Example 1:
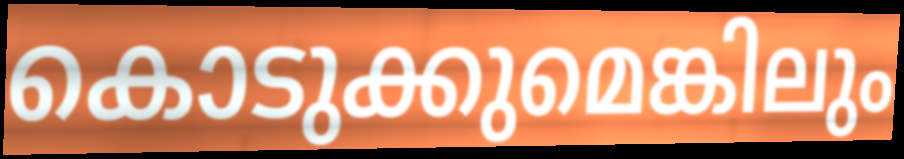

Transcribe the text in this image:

കൊടുക്കുമെങ്കിലും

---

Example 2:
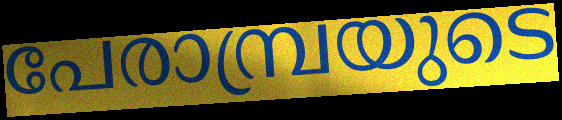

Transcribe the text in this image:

പേരാമ്പ്രയുടെ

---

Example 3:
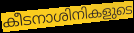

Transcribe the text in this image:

കീടനാശിനികളുടെ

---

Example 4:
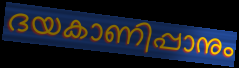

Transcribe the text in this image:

ദയകാണിപ്പാനും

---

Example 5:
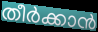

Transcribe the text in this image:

തീർക്കാൻ